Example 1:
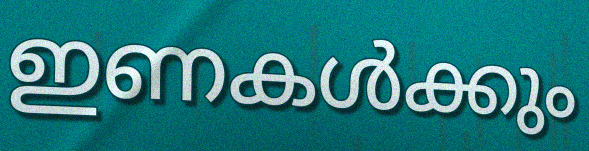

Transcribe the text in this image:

ഇണകൾക്കും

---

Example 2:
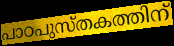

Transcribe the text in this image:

പാഠപുസ്തകത്തിന്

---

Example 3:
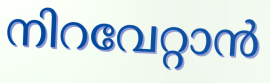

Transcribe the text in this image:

നിറവേറ്റാൻ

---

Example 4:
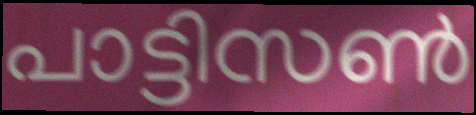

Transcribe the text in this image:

പാട്ടിസൺ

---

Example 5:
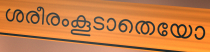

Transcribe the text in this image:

ശരീരംകൂടാതെയോ